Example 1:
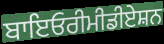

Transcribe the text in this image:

ਬਾਇਓਰੀਮੀਡੀਏਸ਼ਨ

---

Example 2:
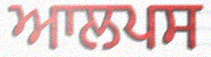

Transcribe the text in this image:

ਆਲਪਸ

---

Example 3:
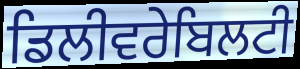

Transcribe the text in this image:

ਡਿਲੀਵਰੇਬਿਲਟੀ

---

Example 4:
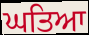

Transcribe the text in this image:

ਘਤਿਆ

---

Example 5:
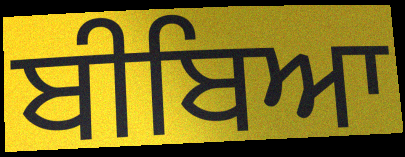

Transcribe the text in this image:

ਬੀਬਿਆ